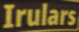
Irulars